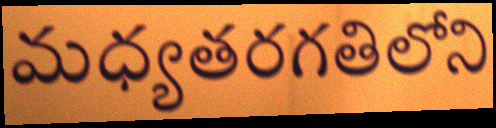
మధ్యతరగతిలోని